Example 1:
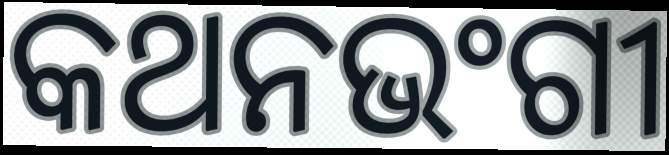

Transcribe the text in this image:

କଥନଭଂଗୀ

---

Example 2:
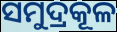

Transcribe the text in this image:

ସମୁଦ୍ରକୂଳ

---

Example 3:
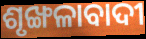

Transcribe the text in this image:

ଶୃଙ୍ଖଳାବାଦୀ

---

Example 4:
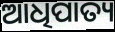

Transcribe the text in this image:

ଆଧିପାତ୍ୟ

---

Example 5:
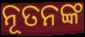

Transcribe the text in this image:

ନୂତନଙ୍କ